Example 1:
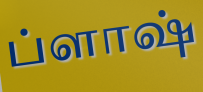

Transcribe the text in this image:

ப்ளாஷ்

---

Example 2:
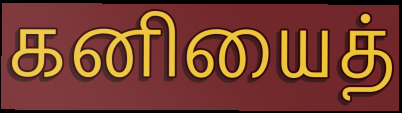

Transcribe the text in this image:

கனியைத்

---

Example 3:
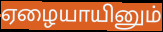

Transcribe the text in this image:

ஏழையாயினும்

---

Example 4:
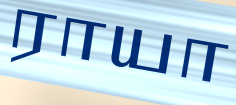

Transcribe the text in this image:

ராயா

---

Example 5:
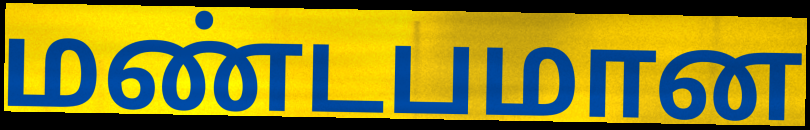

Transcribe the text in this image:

மண்டபமான